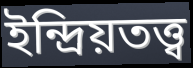
ইন্দ্রিয়তত্ত্ব